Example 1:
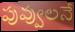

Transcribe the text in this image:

పువ్వులనే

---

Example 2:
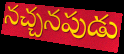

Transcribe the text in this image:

నచ్చనపుడు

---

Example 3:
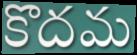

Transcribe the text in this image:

కొదమ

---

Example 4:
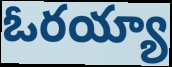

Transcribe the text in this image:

ఓరయ్యా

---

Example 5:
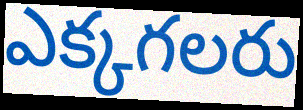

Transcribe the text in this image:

ఎక్కగలరు